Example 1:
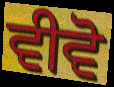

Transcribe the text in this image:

ਵੀਵੋ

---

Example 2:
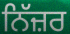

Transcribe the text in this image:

ਨਿੱਜ਼ਰ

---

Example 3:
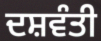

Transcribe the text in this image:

ਦਸ਼ਵੰਤੀ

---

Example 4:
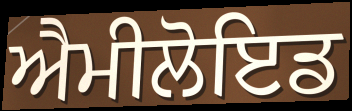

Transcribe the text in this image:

ਐਮੀਲੋਇਡ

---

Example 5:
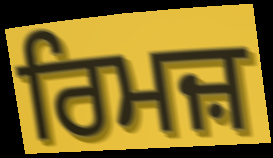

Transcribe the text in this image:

ਰਿਮਜ਼